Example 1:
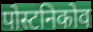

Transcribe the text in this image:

पोस्टनिकोव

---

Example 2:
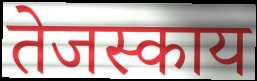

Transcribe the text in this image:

तेजस्काय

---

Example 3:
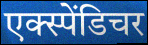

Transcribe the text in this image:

एक्स्पेंडिचर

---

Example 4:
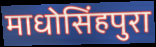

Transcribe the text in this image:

माधोसिंहपुरा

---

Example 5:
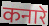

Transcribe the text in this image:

कनारे